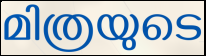
മിത്രയുടെ